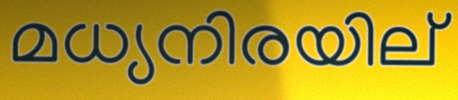
മധ്യനിരയില്